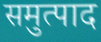
समुत्पाद